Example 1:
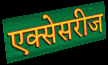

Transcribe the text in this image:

एक्सेसरीज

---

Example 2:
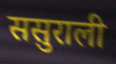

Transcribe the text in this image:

ससुराली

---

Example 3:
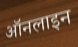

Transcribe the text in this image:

ऑनलाइन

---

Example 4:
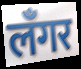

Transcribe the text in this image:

लँगर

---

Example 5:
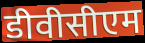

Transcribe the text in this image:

डीवीसीएम